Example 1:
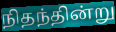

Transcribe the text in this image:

நிதந்தின்று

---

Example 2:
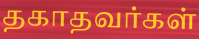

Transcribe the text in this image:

தகாதவர்கள்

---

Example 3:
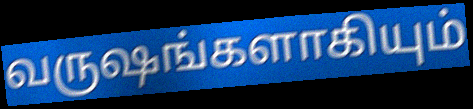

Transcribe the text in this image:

வருஷங்களாகியும்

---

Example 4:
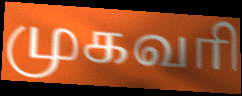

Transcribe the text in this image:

முகவரி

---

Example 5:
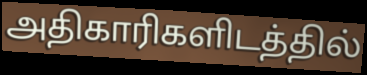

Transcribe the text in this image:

அதிகாரிகளிடத்தில்